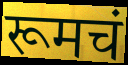
रूमचं